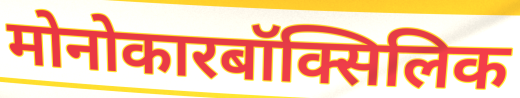
मोनोकारबॉक्सिलिक